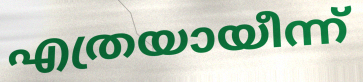
എത്രയായീന്ന്